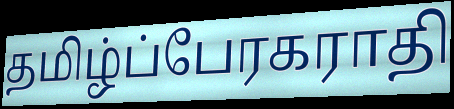
தமிழ்ப்பேரகராதி